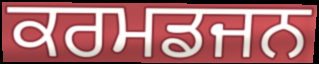
ਕਰਮਡਜਨ